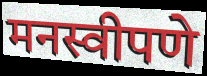
मनस्वीपणे